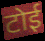
टोई